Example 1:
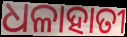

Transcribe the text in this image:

ଧଳାହାତୀ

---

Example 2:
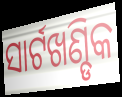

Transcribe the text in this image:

ସାର୍ଟଖଣ୍ଡିକ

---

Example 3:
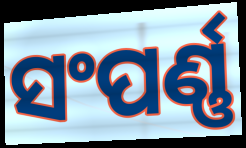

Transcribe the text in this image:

ସଂପର୍ଣ୍ଣ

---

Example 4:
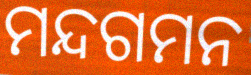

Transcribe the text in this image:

ମନ୍ଦଗମନ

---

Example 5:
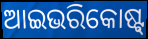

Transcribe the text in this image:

ଆଇଭରିକୋଷ୍ଟ୍